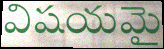
విషయమై